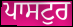
ਪਾਸਟੁਰ